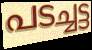
പടച്ചട്ട